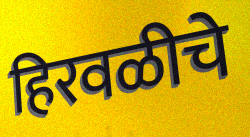
हिरवळीचे